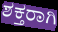
ಶಕ್ತರಾಗಿ